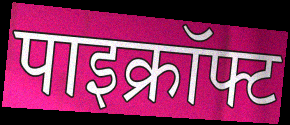
पाइक्रॉफ्ट